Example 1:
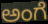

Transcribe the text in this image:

ಅಂಗೆ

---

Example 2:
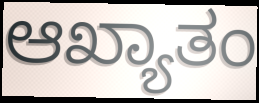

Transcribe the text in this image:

ಆಖ್ಯಾತಂ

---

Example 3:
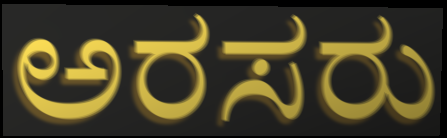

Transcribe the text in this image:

ಅರಸರು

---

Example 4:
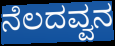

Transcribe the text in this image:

ನೆಲದವ್ವನ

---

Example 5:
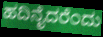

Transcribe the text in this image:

ಹದಿನೈದರೆಂದು